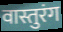
वास्तुरंग